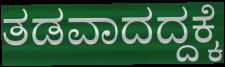
ತಡವಾದದ್ದಕ್ಕೆ